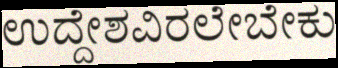
ಉದ್ದೇಶವಿರಲೇಬೇಕು